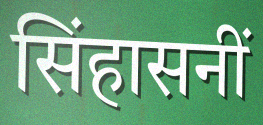
सिंहासनीं